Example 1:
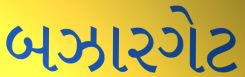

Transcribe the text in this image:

બઝારગેટ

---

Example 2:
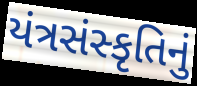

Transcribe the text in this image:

યંત્રસંસ્કૃતિનું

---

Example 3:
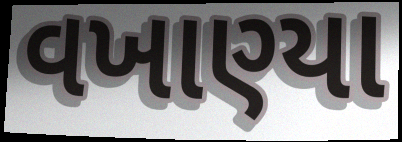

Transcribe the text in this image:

વખાણ્યા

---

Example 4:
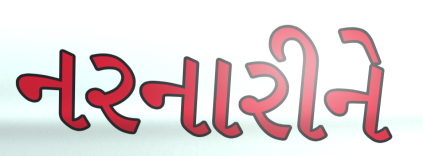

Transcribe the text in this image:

નરનારીને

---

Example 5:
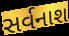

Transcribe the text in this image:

સર્વનાશ